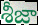
శీజా